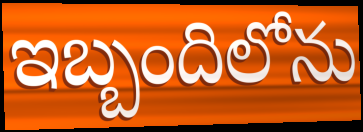
ఇబ్బందిలోను